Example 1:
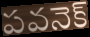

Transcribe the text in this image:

పవనెక్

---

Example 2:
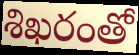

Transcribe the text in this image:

శిఖరంతో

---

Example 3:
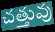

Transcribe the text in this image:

చత్తువు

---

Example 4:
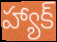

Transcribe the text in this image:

హ్యాక్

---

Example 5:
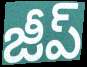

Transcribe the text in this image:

జీప్